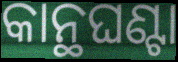
କାନ୍ଥଘଣ୍ଟା